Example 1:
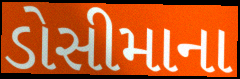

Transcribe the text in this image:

ડોસીમાના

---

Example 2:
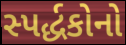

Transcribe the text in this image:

સ્પર્દ્ધકોનો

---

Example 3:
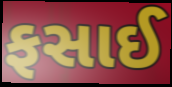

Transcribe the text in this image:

ફસાઈ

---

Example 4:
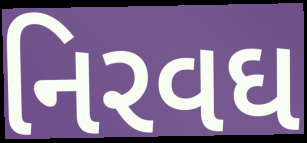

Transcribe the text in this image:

નિરવઘ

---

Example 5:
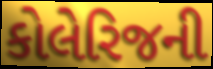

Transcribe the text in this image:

કોલેરિજની